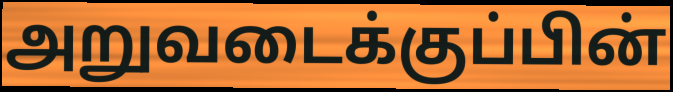
அறுவடைக்குப்பின்